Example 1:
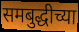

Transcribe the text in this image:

समबुद्धीच्या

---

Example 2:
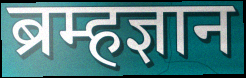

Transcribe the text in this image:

ब्रम्हज्ञान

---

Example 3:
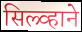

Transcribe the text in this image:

सिल्व्हाने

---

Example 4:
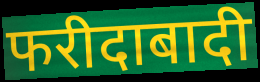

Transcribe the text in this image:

फरीदाबादी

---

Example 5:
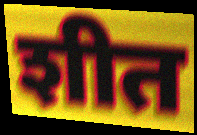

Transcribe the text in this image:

शीत